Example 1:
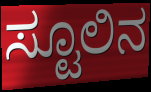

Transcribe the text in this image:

ಸ್ಟೂಲಿನ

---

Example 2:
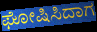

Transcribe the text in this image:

ಘೋಷಿಸಿದಾಗ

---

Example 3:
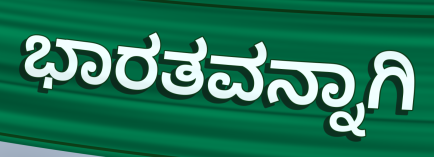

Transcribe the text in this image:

ಭಾರತವನ್ನಾಗಿ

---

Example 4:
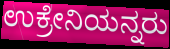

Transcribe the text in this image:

ಉಕ್ರೇನಿಯನ್ನರು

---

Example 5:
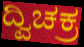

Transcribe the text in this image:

ದ್ವಿಚಕ್ರ